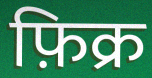
फ़िक्र